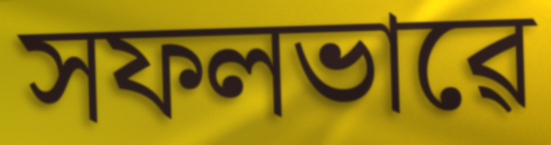
সফলভাৱে